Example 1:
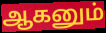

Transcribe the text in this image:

ஆகனும்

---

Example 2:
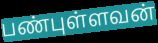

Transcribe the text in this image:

பண்புள்ளவன்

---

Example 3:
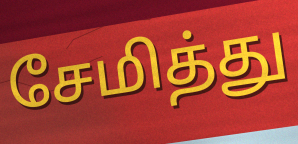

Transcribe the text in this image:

சேமித்து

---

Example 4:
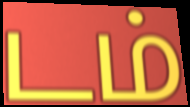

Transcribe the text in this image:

டம்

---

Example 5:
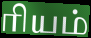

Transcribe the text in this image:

ரியம்